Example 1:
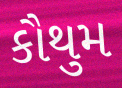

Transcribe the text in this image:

કૌથુમ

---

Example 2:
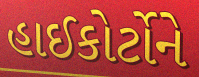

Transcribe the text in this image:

હાઈકોર્ટોને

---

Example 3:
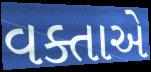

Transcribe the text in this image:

વક્તાએ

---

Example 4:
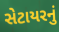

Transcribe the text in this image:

સેટાયરનું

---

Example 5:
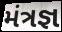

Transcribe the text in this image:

મંત્રજ્ઞ